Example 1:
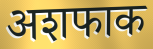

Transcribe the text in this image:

अशफाक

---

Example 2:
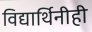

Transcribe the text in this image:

विद्यार्थिनीही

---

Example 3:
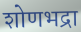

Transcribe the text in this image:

शोणभद्रा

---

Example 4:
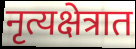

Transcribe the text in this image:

नृत्यक्षेत्रात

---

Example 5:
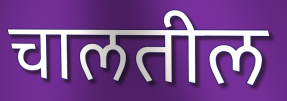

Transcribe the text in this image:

चालतील